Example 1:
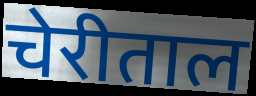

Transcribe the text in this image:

चेरीताल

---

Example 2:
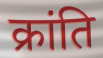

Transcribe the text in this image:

क्रांति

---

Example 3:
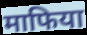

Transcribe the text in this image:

माफिया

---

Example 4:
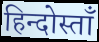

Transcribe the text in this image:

हिन्दोस्ताँ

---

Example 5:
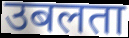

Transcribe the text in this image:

उबलता